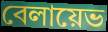
বেলায়েভ